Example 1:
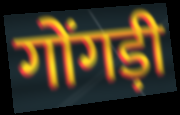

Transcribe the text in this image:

गोंगड़ी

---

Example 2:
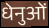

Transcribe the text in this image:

धेनुओं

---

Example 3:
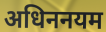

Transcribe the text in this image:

अधिननयम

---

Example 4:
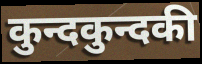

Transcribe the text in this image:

कुन्दकुन्दकी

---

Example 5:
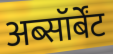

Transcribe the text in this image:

अब्सॉर्बेंट